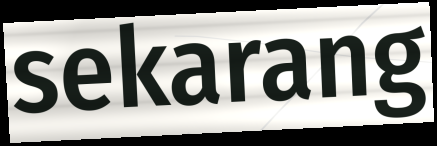
sekarang